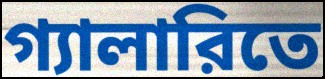
গ্যালারিতে